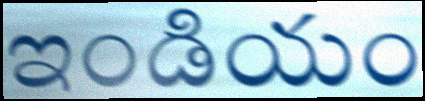
ఇండియం